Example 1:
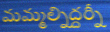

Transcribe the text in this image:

మమ్మల్నిద్దర్నీ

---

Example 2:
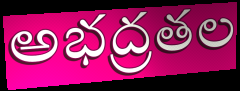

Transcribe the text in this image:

అభద్రతల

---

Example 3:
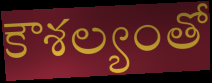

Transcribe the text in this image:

కౌశల్యంతో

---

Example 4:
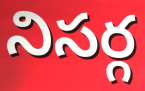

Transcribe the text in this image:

నిసర్గ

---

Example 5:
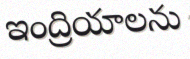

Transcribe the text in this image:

ఇంద్రియాలను